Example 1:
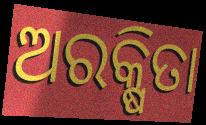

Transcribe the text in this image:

ଅରକ୍ଷିତା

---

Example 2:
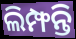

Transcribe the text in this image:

ଲିମ୍ଫନ୍ତି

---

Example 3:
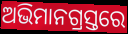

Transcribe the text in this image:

ଅଭିମାନଗ୍ରସ୍ତରେ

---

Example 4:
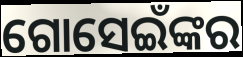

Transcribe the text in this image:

ଗୋସେଇଁଙ୍କର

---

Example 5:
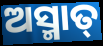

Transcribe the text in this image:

ଅସ୍ମାତ୍